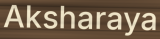
Aksharaya